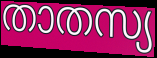
താതസ്യ